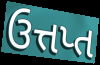
ઉત્તપ્ત